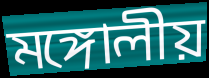
মঙ্গোলীয়